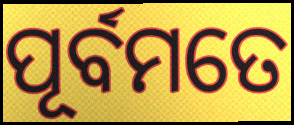
ପୂର୍ବମତେ